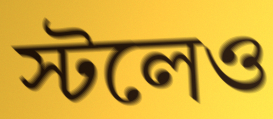
স্টলেও